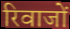
रिवाजों